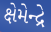
ક્ષેમેન્દ્રે